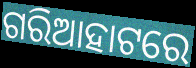
ଗରିଆହାଟରେ